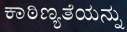
ಕಾಠಿಣ್ಯತೆಯನ್ನು